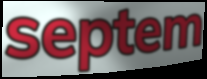
septem